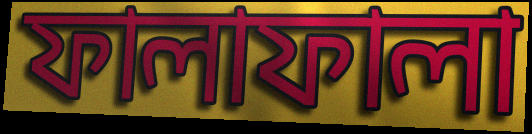
ফালাফালা